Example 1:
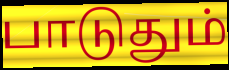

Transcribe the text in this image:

பாடுதும்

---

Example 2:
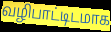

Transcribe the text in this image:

வழிபாட்டிடமாக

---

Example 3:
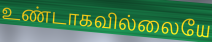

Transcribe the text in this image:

உண்டாகவில்லையே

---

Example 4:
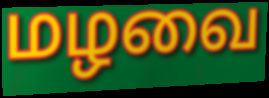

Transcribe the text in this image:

மழவை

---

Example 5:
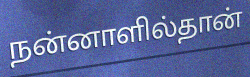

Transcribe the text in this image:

நன்னாளில்தான்